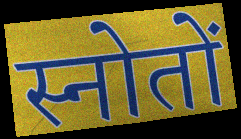
स्नोतों